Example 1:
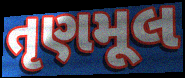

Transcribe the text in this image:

તૃણમૂલ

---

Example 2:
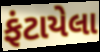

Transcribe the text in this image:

ફંટાયેલા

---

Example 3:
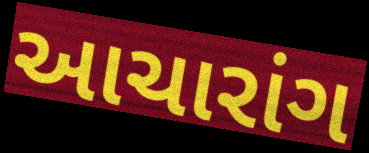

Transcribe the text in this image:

આચારાંગ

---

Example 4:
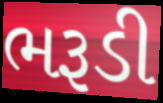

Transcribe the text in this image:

ભરૂડી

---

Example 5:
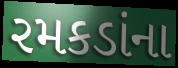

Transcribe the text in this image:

રમકડાંના